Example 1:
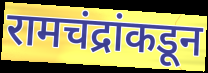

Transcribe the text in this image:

रामचंद्रांकडून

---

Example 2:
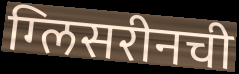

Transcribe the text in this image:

ग्लिसरीनची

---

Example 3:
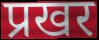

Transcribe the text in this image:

प्रखर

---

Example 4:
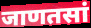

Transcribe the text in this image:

जाणतसां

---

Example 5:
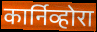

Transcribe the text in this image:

कार्निव्होरा